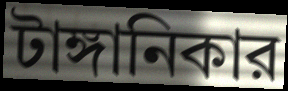
টাঙ্গানিকার